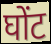
घोंट